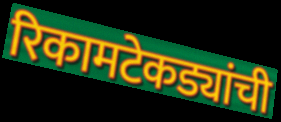
रिकामटेकड्यांची